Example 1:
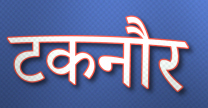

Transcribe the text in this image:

टकनौर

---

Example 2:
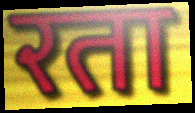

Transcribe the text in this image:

रता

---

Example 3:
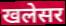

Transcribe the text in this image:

खलेसर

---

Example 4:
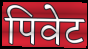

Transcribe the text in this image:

पिवेट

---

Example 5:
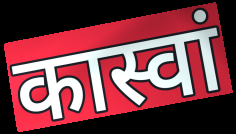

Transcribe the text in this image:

कास्वां